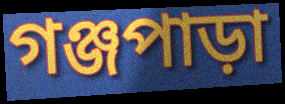
গঞ্জপাড়া